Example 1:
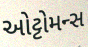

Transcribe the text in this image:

ઓટ્ટોમન્સ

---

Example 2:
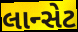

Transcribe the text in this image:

લાન્સેટ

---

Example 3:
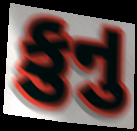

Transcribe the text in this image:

કુનુ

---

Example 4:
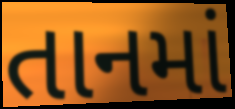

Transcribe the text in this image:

તાનમાં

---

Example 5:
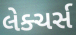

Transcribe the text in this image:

લેક્ચર્સ